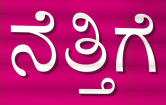
ನೆತ್ತಿಗೆ